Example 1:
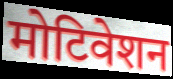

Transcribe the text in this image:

मोटिवेशन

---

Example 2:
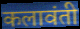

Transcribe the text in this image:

कलावंती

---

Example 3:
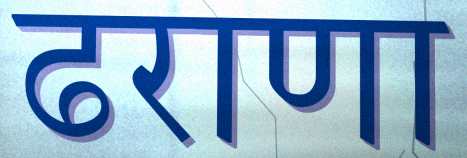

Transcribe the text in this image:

ढराणा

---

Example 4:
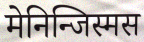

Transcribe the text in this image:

मेनिन्जिस्मस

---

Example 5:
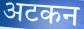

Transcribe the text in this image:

अटकन